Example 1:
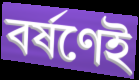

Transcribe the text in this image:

বর্ষণেই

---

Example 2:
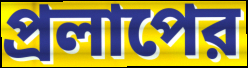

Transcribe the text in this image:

প্রলাপের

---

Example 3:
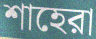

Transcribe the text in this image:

শাহেরা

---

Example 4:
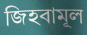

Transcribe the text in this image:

জিহবামূল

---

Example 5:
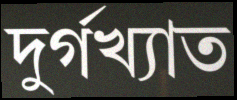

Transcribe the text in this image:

দুর্গখ্যাত